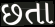
છતા